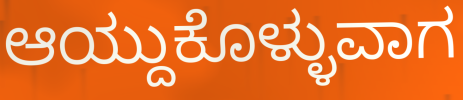
ಆಯ್ದುಕೊಳ್ಳುವಾಗ